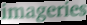
imageries